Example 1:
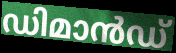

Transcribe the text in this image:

ഡിമാൻഡ്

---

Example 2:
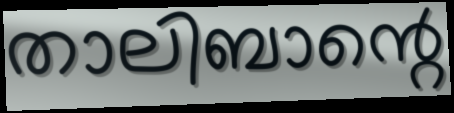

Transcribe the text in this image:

താലിബാന്റെ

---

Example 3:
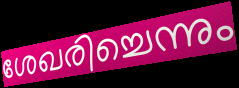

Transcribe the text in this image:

ശേഖരിച്ചെന്നും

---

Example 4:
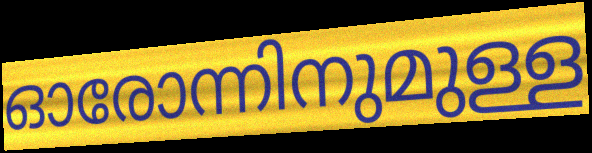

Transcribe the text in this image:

ഓരോന്നിനുമുള്ള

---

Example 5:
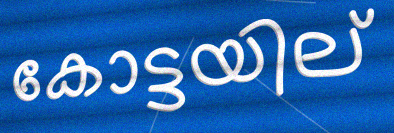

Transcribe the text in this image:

കോട്ടയില്